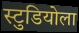
स्टुडियोला